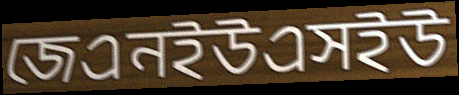
জেএনইউএসইউ